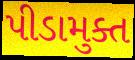
પીડામુક્ત